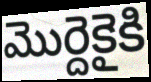
మొర్దెకైకి